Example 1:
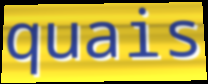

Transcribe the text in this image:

quais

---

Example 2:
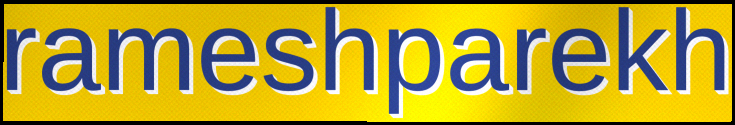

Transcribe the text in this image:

rameshparekh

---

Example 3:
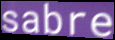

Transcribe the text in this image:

sabre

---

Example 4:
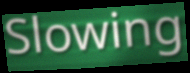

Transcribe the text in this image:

Slowing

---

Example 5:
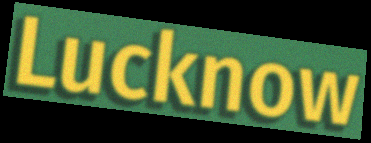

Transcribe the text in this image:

Lucknow